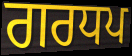
ਗਰਧਪ